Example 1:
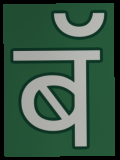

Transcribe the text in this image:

बॅ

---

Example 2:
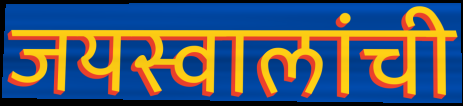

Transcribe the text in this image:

जयस्वालांची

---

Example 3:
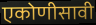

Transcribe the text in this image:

एकोणीसावी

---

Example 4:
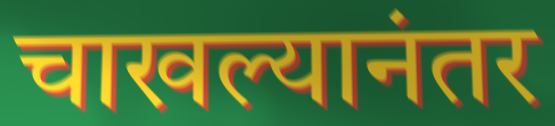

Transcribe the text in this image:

चाखल्यानंतर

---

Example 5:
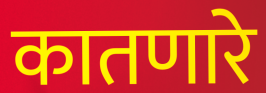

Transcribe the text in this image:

कातणारे